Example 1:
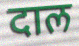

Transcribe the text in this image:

दाल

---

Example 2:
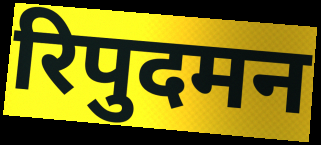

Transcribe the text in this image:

रिपुदमन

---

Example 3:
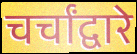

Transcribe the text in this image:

चर्चांद्वारे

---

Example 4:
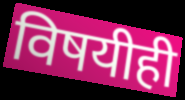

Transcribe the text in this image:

विषयीही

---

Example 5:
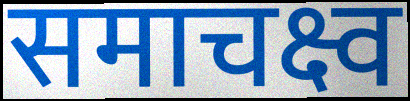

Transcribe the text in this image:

समाचक्ष्व